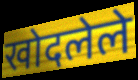
खोदलेले